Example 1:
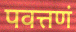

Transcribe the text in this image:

पवत्तणं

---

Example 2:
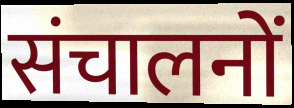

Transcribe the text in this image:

संचालनों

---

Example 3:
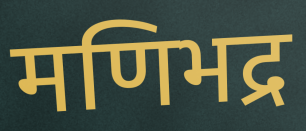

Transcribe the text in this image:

मणिभद्र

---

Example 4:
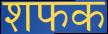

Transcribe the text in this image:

शफक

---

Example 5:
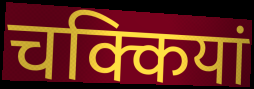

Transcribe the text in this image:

चक्कियां